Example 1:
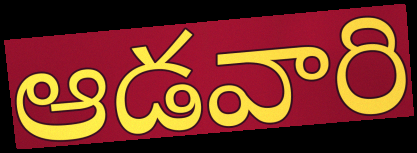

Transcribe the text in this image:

ఆడవారి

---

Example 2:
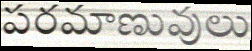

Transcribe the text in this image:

పరమాణువులు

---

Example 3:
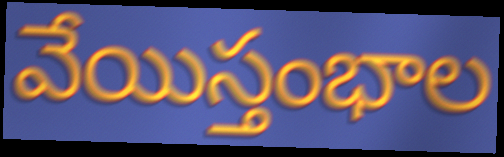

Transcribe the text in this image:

వేయిస్తంభాల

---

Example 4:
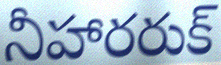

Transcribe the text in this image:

నీహారరుక్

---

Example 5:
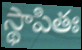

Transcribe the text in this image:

స్థాపితః